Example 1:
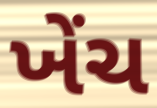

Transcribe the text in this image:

ખેંચ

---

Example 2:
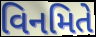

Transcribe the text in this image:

વિનમિતે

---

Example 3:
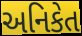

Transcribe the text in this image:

અનિકેત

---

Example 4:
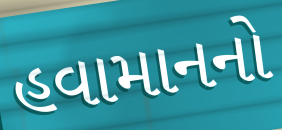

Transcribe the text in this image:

હવામાનનો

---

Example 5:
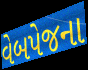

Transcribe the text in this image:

વેબપેજના